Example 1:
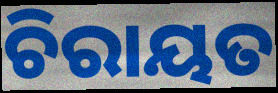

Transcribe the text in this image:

ଚିରାୟତ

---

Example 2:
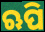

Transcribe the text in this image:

ଋପି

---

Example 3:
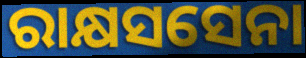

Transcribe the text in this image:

ରାକ୍ଷସସେନା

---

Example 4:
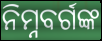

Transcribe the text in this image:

ନିମ୍ନବର୍ଗଙ୍କ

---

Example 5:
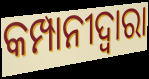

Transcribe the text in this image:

କମ୍ପାନୀଦ୍ୱାରା